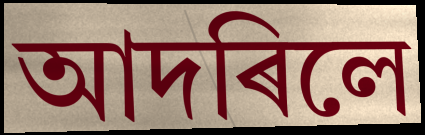
আদৰিলে